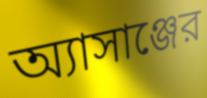
অ্যাসাঞ্জের